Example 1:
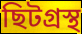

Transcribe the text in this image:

ছিটগ্রস্থ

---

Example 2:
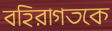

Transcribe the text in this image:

বহিরাগতকে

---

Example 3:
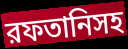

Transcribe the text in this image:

রফতানিসহ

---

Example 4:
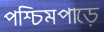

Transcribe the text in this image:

পশ্চিমপাড়ে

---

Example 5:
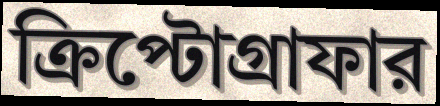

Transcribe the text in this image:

ক্রিপ্টোগ্রাফার